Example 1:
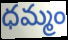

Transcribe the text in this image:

ధమ్మం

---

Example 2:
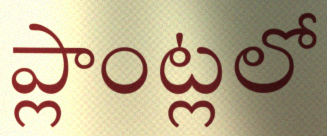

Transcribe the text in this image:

ప్లాంట్లలో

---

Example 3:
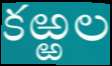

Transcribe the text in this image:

కఱ్ఱల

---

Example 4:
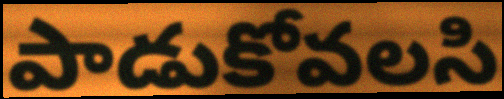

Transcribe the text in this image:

పాడుకోవలసి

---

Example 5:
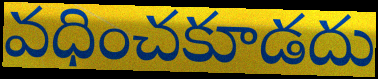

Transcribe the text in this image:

వధించకూడదు